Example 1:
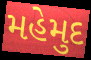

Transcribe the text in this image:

મહેમુદ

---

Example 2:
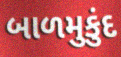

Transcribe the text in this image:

બાળમુકુંદ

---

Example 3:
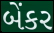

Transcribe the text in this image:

બેંકર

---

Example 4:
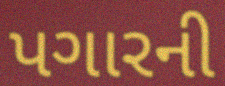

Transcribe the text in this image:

પગારની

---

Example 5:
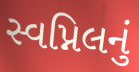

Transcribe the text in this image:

સ્વપ્નિલનું